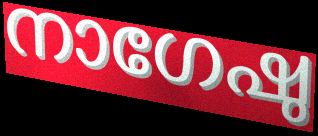
നാഗേഷു